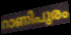
റാണിപുരം